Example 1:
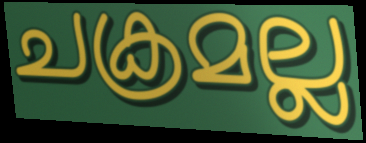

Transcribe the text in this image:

ചക്രമല്ല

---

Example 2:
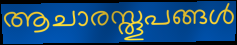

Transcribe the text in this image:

ആചാരസ്തൂപങ്ങൾ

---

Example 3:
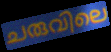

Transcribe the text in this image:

ചരുവിലെ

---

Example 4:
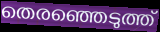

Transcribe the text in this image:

തെരഞ്ഞെടുത്ത്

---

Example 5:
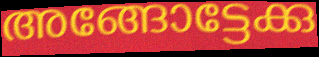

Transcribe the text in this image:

അങ്ങോട്ടേക്കു